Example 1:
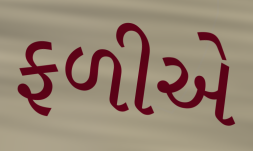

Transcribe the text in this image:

ફળીએ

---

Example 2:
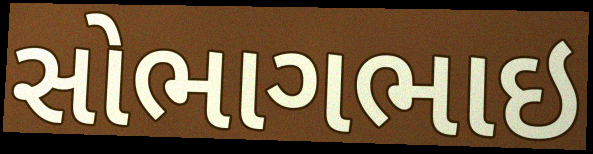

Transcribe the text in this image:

સોભાગભાઇ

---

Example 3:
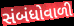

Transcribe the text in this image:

સંબંધોવાળી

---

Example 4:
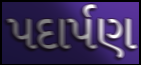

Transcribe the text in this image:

પદાર્પણ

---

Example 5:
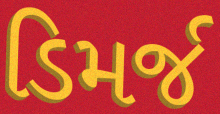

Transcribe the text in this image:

ડિમર્જ